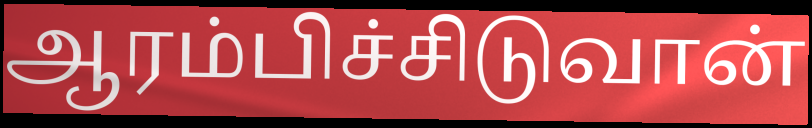
ஆரம்பிச்சிடுவான்